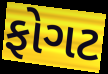
ફોગટ